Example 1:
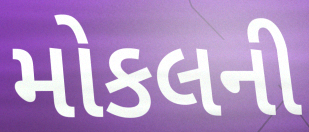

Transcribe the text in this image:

મોકલની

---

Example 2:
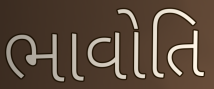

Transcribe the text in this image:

ભાવોતિ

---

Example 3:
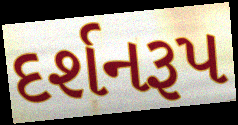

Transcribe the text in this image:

દર્શનરૂપ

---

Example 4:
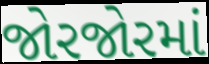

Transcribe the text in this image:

જોરજોરમાં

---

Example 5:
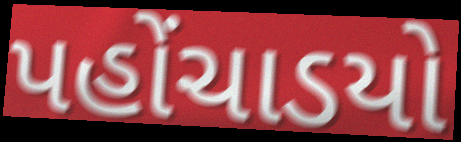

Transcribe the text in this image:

પહોંચાડયો